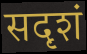
सदृशं